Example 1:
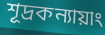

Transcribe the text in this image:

শূদ্রকন্যায়াং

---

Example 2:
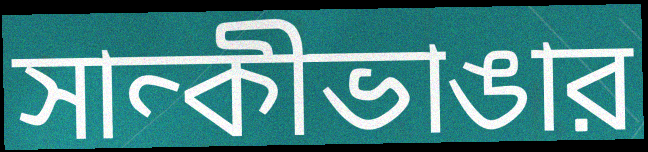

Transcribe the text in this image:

সান্কীভাঙার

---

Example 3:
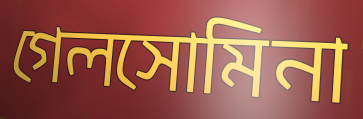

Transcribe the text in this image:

গেলসোমিনা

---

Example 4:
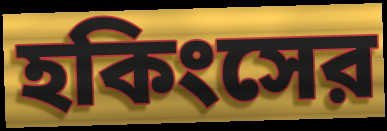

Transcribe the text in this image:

হকিংসের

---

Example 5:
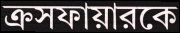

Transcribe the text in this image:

ক্রসফায়ারকে